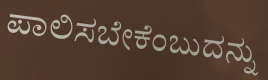
ಪಾಲಿಸಬೇಕೆಂಬುದನ್ನು